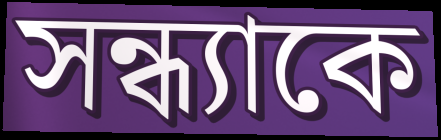
সন্ধ্যাকে